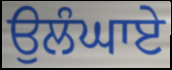
ਉਲੰਘਾਏ